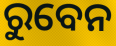
ରୁବେନ